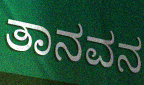
ತಾನವನ